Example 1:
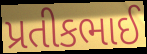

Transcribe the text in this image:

પ્રતીકભાઈ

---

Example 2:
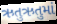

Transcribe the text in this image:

ઋતુઋતુમાં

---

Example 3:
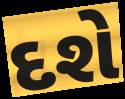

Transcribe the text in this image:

દશે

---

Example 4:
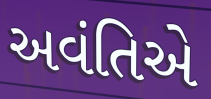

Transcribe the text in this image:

અવંતિએ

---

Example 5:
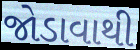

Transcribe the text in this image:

જોડાવાથી